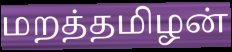
மறத்தமிழன்